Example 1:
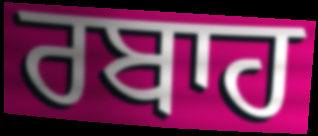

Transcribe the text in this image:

ਰਬਾਹ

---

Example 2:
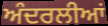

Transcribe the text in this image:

ਅੰਦਰਲੀਆਂ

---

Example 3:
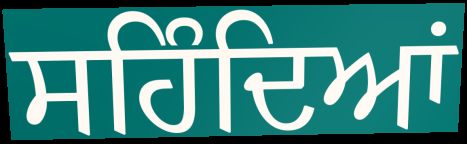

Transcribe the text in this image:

ਸਹਿੰਦਿਆਂ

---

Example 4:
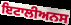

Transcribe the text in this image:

ਇਟਾਲੀਅਨਸ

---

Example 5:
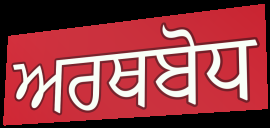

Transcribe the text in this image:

ਅਰਥਬੋਧ